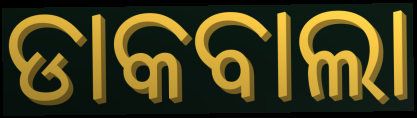
ଡାକବାଲା